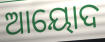
ଆୟୋଦ